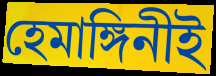
হেমাঙ্গিনীই